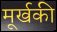
मूर्खकी